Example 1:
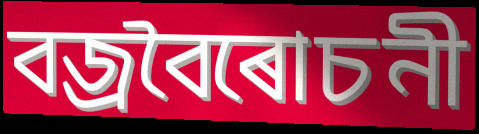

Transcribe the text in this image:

বজ্ৰবৈৰোচনী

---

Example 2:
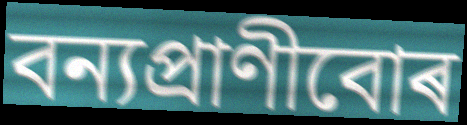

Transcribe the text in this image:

বন্যপ্ৰাণীবোৰ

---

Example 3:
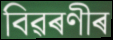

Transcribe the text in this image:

বিৱৰণীৰ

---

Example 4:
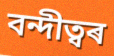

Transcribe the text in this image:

বন্দীত্বৰ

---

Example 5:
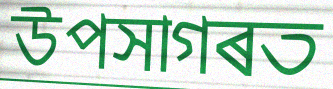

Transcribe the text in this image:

উপসাগৰত